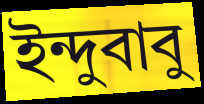
ইন্দুবাবু